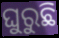
ଘୁରୁଛି